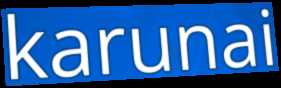
karunai